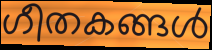
ഗീതകങ്ങൾ